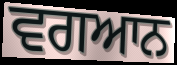
ਵਗਆਨ